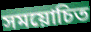
সময়োচিত